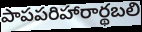
పాపపరిహారార్థబలి